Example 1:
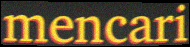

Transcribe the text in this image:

mencari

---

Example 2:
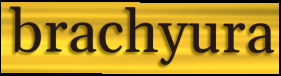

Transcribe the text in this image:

brachyura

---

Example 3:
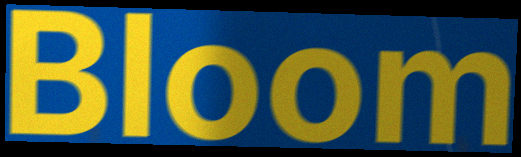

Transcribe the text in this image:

Bloom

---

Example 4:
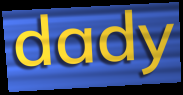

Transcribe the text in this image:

dady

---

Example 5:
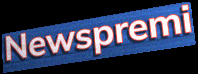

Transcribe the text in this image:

Newspremi